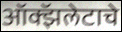
ऑक्झॅलेटाचे